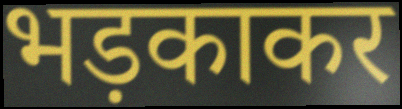
भड़काकर